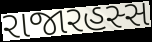
રાજારહસ્સ